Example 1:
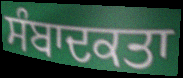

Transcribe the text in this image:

ਸੰਬਾਦਕਤਾ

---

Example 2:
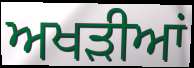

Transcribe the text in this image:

ਅਖੜੀਆਂ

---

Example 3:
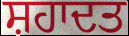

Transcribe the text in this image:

ਸ਼ਹਾਦਤ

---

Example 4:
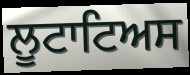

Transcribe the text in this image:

ਲੂਟਾਟਿਅਸ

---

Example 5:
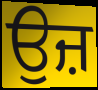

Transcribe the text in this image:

ਉਜ਼